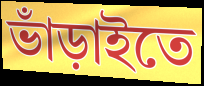
ভাঁড়াইতে